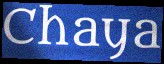
Chaya